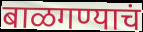
बाळगण्याचं